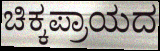
ಚಿಕ್ಕಪ್ರಾಯದ